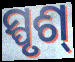
ସ୍ପୃଶ୍